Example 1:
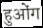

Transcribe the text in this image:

हुओंग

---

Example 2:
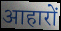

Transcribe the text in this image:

आहारों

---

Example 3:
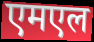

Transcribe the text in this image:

एमएल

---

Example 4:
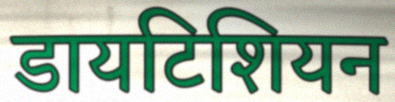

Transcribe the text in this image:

डायटिशियन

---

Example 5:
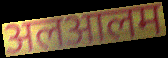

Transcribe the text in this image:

अलआलम